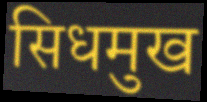
सिधमुख